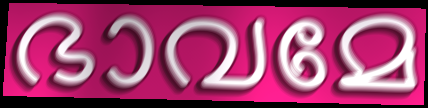
ഭാവമേ